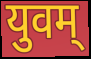
युवम्